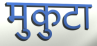
मुकुटा